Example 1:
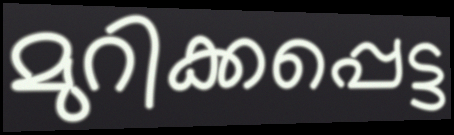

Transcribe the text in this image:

മുറിക്കപ്പെട്ട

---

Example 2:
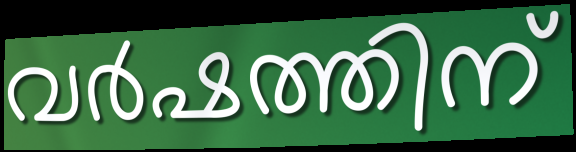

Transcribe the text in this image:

വർഷത്തിന്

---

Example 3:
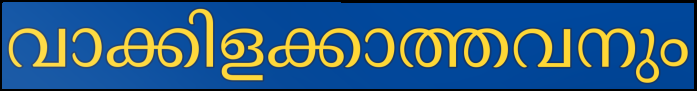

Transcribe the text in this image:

വാക്കിളക്കാത്തവനും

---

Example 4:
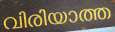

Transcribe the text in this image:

വിരിയാത്ത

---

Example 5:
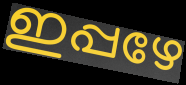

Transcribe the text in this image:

ഇപ്പഴേ